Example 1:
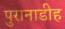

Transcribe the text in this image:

पुरानाडीह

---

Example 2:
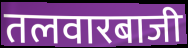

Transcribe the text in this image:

तलवारबाजी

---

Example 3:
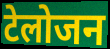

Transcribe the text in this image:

टेलोजन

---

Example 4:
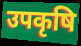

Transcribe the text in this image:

उपकृषि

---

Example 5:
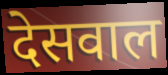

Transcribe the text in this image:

देसवाल